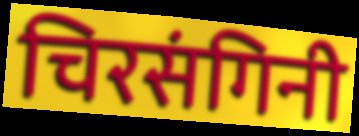
चिरसंगिनी